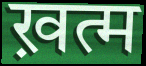
ख़त्म